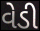
વેડી